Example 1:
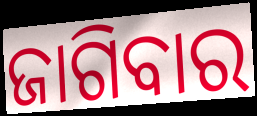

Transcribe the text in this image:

ଜାଗିବାର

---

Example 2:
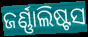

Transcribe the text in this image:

ଜର୍ଣ୍ଣାଲିଷ୍ଟସ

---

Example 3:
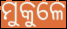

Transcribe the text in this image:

ମୁକୁଳେ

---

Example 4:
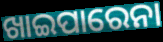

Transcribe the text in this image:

ଖାଇପାରେନା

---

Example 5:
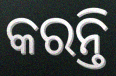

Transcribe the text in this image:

କରନ୍ତି